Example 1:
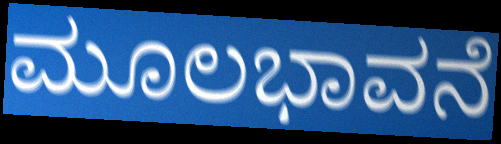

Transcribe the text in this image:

ಮೂಲಭಾವನೆ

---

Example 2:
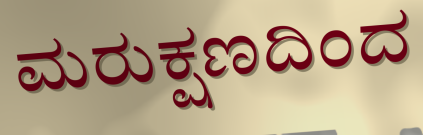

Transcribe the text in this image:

ಮರುಕ್ಷಣದಿಂದ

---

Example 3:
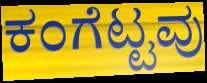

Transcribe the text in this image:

ಕಂಗೆಟ್ಟವು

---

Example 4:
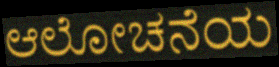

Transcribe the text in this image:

ಆಲೋಚನೆಯ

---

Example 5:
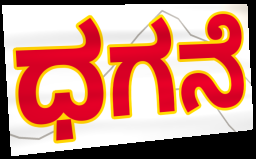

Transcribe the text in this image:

ಧಗನೆ